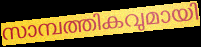
സാമ്പത്തികവുമായി